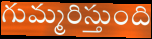
గుమ్మరిస్తుంది